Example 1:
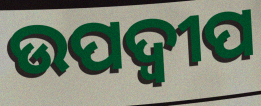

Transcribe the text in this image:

ଉପଦ୍ବୀପ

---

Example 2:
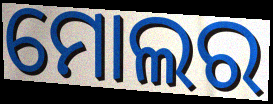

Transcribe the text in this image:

ମୋଲର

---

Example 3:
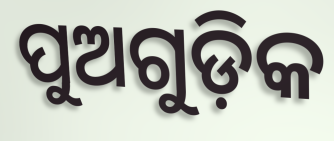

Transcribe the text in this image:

ପୁଅଗୁଡ଼ିକ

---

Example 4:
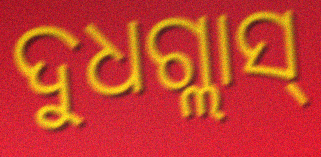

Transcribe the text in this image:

ଦୁଧଗ୍ଲାସ୍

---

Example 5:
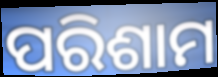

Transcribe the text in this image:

ପରିଶାମ